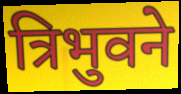
त्रिभुवने